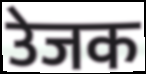
उेजक